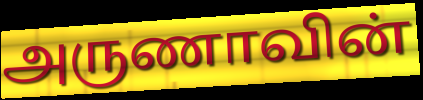
அருணாவின்